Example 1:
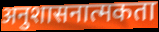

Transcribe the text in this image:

अनुशासनात्मकता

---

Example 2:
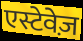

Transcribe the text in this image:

एस्टेवेज़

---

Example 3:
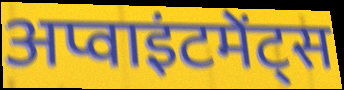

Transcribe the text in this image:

अप्वाइंटमेंट्स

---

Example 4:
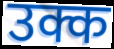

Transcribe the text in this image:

उक्क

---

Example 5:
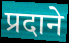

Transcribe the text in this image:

प्रदाने